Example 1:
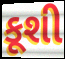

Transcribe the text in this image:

કૂશી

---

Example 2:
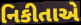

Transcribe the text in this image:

નિકીતાએ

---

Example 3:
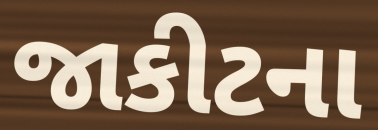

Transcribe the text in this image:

જાકીટના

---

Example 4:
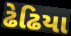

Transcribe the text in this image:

ઢેઢિયા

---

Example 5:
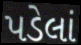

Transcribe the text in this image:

પડેલાં